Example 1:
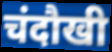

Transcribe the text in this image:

चंदौखी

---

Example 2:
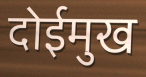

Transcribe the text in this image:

दोईमुख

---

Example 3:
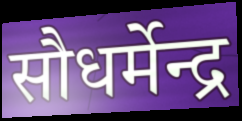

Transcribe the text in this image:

सौधर्मेन्द्र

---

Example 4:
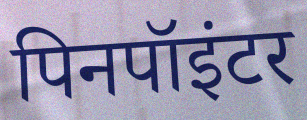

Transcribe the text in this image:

पिनपॉइंटर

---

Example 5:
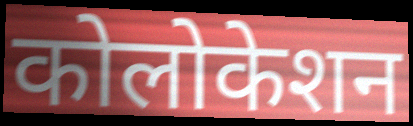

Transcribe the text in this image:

कोलोकेशन